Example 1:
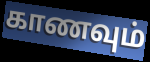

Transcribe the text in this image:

காணவும்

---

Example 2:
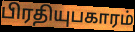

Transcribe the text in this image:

பிரதியுபகாரம்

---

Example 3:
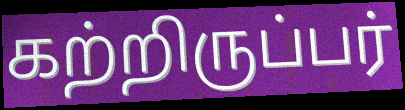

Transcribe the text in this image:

கற்றிருப்பர்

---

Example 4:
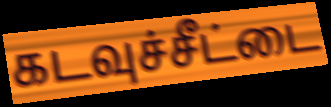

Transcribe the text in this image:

கடவுச்சீட்டை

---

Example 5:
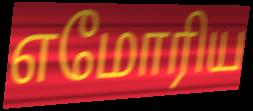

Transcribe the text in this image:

எமோரிய